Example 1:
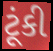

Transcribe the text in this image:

ટૂંકી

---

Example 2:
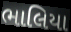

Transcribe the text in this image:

ભાલિયા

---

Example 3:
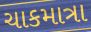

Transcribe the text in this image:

ચાકમાત્રા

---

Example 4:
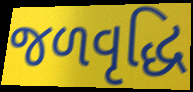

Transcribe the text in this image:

જળવૃદ્ધિ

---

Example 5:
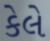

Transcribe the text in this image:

કેલે